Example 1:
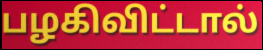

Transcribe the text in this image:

பழகிவிட்டால்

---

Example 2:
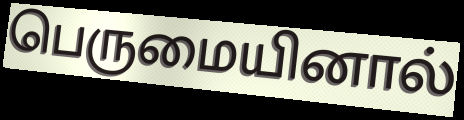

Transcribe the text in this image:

பெருமையினால்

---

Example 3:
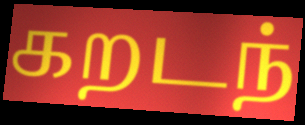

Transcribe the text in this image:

கறடந்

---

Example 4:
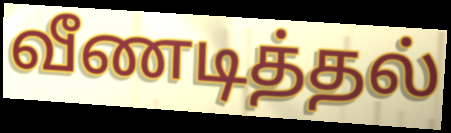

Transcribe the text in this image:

வீணடித்தல்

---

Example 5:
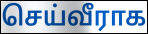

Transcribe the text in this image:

செய்வீராக